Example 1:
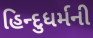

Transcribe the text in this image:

હિન્દુધર્મની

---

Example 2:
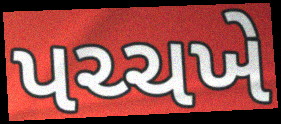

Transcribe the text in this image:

પચ્ચખે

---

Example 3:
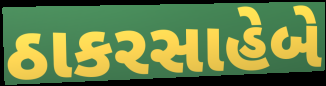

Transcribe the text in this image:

ઠાકરસાહેબે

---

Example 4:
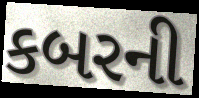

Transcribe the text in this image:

કબરની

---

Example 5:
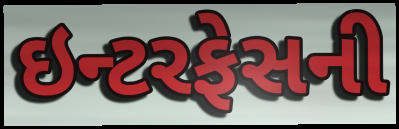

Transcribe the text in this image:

ઇન્ટરફેસની